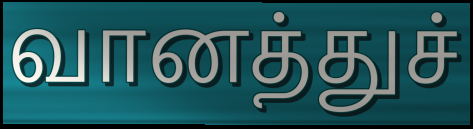
வானத்துச்